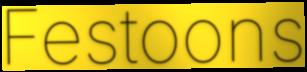
Festoons